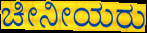
ಚೀನೀಯರು